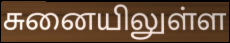
சுனையிலுள்ள